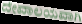
ದೇವಾಲಯವಾಗಿ